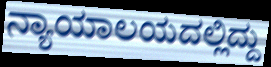
ನ್ಯಾಯಾಲಯದಲ್ಲಿದ್ದು